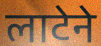
लाटेने